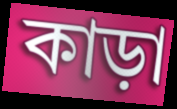
কাড়া